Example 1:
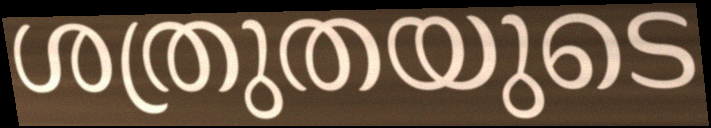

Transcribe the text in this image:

ശത്രുതയുടെ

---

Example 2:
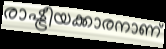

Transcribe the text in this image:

രാഷ്ട്രീയക്കാരനാണ്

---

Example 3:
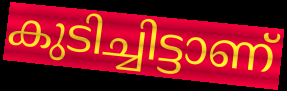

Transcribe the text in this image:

കുടിച്ചിട്ടാണ്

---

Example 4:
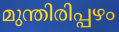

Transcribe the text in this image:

മുന്തിരിപ്പഴം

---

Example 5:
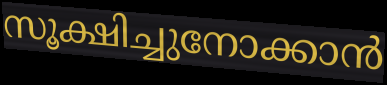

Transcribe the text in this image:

സൂക്ഷിച്ചുനോക്കാൻ